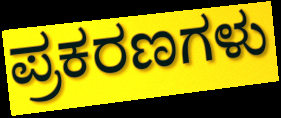
ಪ್ರಕರಣಗಳು